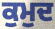
ਕੁਮੁਦ